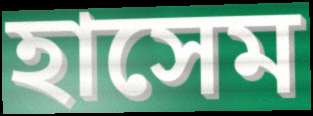
হাসেম